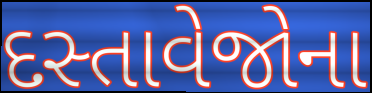
દસ્તાવેજોના